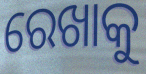
ରେଖାକୁ